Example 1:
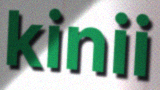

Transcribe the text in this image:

kinii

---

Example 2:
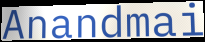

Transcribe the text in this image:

Anandmai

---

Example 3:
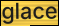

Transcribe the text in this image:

glace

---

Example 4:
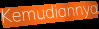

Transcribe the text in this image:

Kemudiannya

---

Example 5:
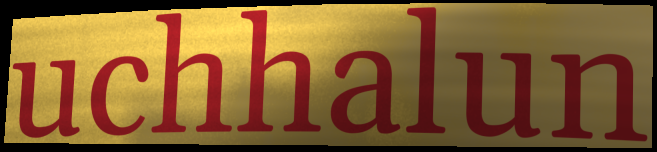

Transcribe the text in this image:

uchhalun